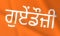
ਗੁਏਂਡੌਜ਼ੀ